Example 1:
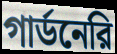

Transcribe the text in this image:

গার্ডনেরি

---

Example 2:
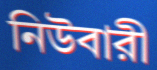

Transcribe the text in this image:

নিউবারী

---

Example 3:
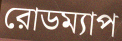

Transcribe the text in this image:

রোডম্যাপ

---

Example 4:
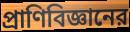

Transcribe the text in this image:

প্রাণিবিজ্ঞানের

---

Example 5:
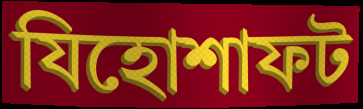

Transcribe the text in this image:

যিহোশাফট